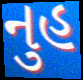
નુહ